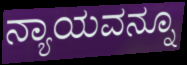
ನ್ಯಾಯವನ್ನೂ